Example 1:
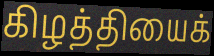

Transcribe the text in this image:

கிழத்தியைக்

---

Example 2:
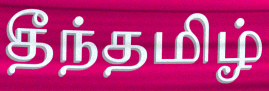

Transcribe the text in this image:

தீந்தமிழ்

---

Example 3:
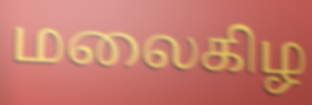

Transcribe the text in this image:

மலைகிழ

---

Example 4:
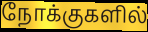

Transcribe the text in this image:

நோக்குகளில்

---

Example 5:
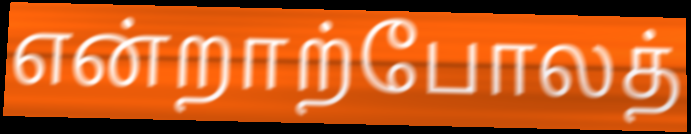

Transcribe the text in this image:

என்றாற்போலத்